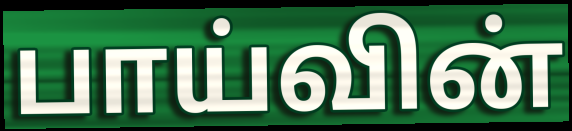
பாய்வின்